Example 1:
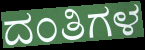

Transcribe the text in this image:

ದಂತಿಗಳ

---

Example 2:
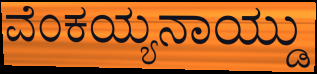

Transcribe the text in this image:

ವೆಂಕಯ್ಯನಾಯ್ಡು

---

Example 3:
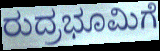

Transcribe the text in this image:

ರುದ್ರಭೂಮಿಗೆ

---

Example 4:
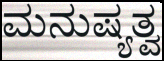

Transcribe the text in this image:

ಮನುಷ್ಯತ್ವ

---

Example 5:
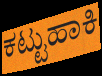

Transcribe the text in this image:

ಕಟ್ಟುಹಾಕಿ